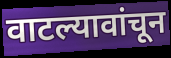
वाटल्यावांचून